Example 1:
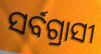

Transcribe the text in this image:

ସର୍ବଗ୍ରାସୀ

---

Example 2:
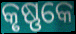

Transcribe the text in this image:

କୃଷ୍ଣକେ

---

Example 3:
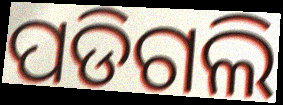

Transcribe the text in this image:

ପଡିଗଲି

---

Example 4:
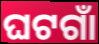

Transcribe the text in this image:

ଘଟଗାଁ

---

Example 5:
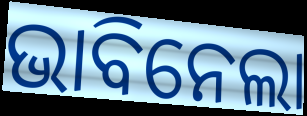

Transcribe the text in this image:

ଭାବିନେଲା